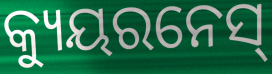
କ୍ୟୁୟରନେସ୍